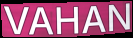
VAHAN